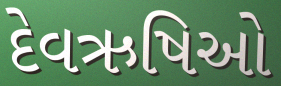
દેવઋષિઓ